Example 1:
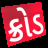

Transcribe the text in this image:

ક્રોડ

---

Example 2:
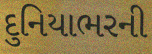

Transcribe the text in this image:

દુનિયાભરની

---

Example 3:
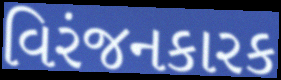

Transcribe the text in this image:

વિરંજનકારક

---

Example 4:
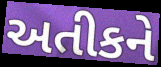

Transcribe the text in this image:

અતીકને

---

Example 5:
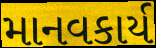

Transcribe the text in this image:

માનવકાર્ય